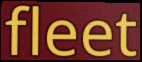
fleet